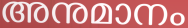
അനുമാനം